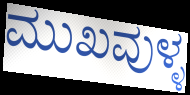
ಮುಖವುಳ್ಳ